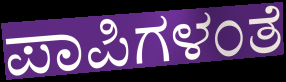
ಪಾಪಿಗಳಂತೆ